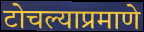
टोचल्याप्रमाणे